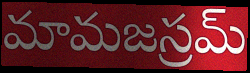
మామజస్రమ్